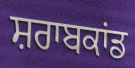
ਸ਼ਰਾਬਕਾਂਡ